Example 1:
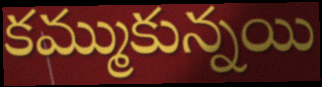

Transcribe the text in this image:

కమ్ముకున్నయి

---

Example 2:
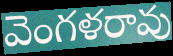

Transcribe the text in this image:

వెంగళరావు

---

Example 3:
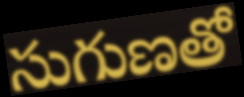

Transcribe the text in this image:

సుగుణతో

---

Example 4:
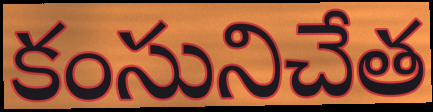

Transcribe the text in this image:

కంసునిచేత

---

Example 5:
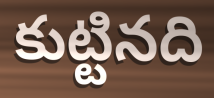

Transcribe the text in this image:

కుట్టినది